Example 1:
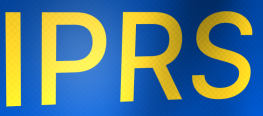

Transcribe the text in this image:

IPRS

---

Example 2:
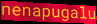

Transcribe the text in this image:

nenapugalu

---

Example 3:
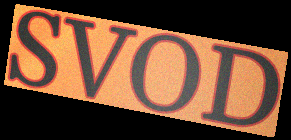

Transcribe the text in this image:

SVOD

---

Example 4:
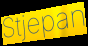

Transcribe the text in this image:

Stjepan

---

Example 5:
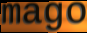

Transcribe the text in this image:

mago